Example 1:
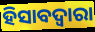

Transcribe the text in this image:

ହିସାବଦ୍ଵାରା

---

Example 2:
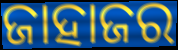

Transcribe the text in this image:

ଜାହାଜର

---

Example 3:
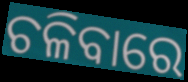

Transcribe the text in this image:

ଚଳିବାରେ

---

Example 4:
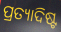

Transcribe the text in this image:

ପ୍ରତ୍ୟାଦିଷ୍ଟ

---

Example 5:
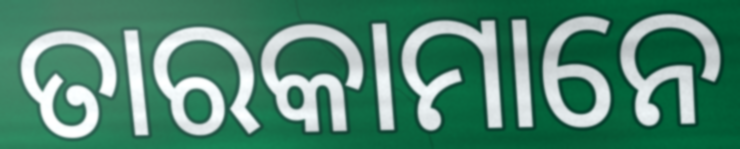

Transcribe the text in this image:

ତାରକାମାନେ